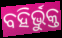
ବହିର୍ଭୁକ୍ତ